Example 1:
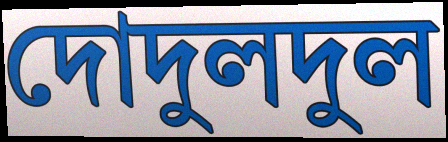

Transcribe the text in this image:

দোদুলদুল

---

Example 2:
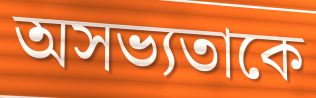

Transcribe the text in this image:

অসভ্যতাকে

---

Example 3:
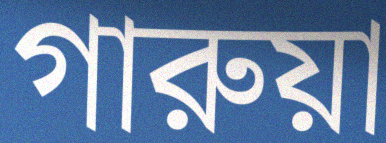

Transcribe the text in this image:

গারুয়া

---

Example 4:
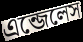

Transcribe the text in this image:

এন্জেলেস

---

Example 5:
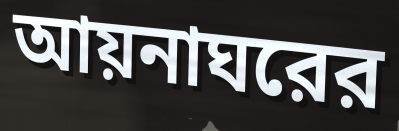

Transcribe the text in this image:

আয়নাঘরের